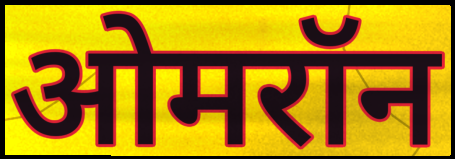
ओमरॉन